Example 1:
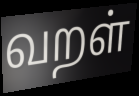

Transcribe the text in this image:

வறள்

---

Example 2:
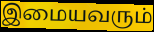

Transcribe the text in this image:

இமையவரும்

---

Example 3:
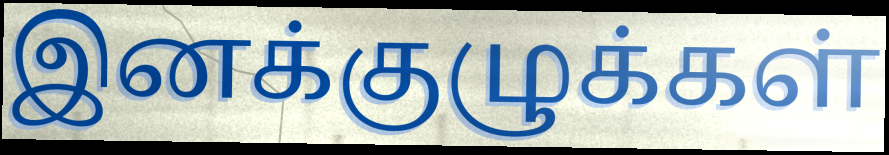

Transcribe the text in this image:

இனக்குழுக்கள்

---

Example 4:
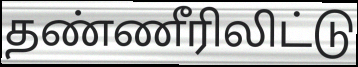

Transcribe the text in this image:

தண்ணீரிலிட்டு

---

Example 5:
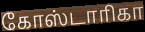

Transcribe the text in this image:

கோஸ்டாரிகா